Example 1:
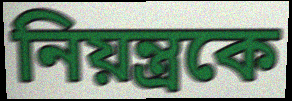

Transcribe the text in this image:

নিয়ন্ত্রকে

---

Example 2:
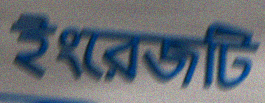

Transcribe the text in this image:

ইংরেজটি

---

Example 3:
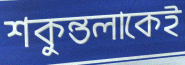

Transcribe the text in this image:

শকুন্তলাকেই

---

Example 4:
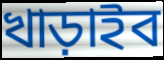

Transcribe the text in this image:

খাড়াইব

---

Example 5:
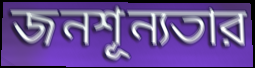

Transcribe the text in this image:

জনশূন্যতার